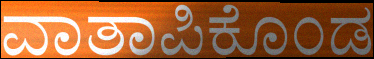
ವಾತಾಪಿಕೊಂಡ